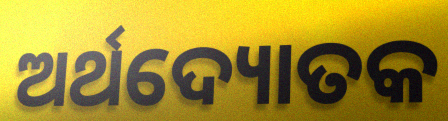
ଅର୍ଥଦ୍ୟୋତକ